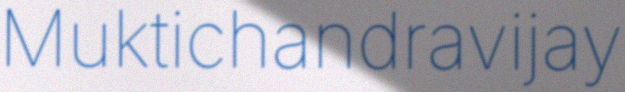
Muktichandravijay